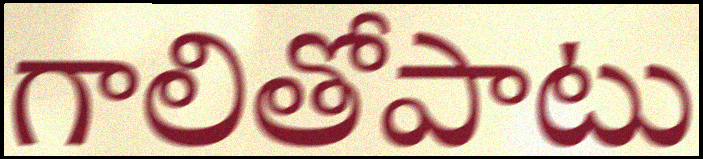
గాలితోపాటు